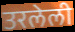
उरलेली